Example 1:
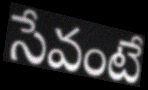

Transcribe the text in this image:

సేవంటే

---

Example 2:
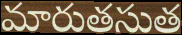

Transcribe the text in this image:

మారుతసుత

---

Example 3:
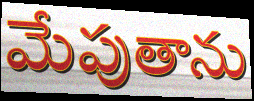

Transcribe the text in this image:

మేపుతాను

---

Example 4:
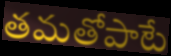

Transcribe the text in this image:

తమతోపాటే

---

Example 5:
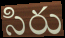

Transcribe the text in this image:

సిరు